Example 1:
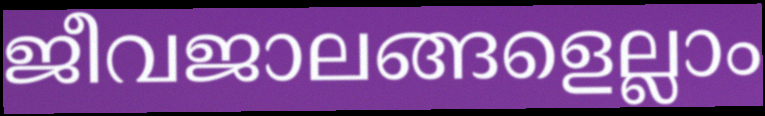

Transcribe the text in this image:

ജീവജാലങ്ങളെല്ലാം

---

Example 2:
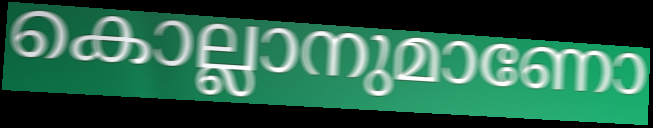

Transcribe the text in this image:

കൊല്ലാനുമാണോ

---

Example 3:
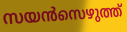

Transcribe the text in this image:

സയൻസെഴുത്ത്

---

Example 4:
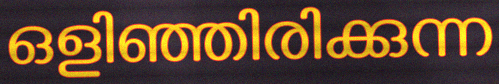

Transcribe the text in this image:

ഒളിഞ്ഞിരിക്കുന്ന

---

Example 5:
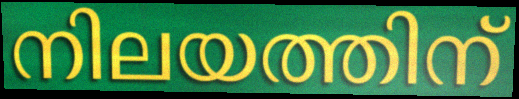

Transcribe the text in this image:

നിലയത്തിന്